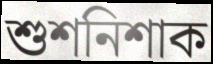
শুশনিশাক